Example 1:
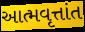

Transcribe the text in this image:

આત્મવૃત્તાંત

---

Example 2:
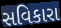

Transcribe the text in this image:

સવિકારા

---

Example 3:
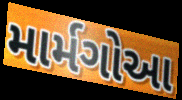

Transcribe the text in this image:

માર્મગોઆ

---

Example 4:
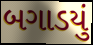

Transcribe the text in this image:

બગાડયું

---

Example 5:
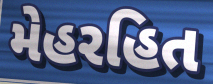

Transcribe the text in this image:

મેહરહિત